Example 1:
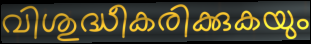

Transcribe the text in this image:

വിശുദ്ധീകരിക്കുകയും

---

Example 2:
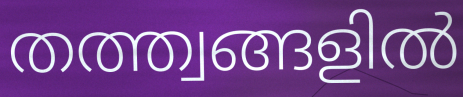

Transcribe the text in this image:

തത്ത്വങ്ങളിൽ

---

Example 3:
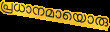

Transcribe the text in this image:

പ്രധാനമായൊരു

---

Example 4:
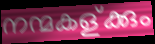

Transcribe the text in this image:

നന്മകള്ക്കും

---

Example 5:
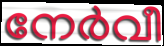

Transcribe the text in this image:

നേർവീ